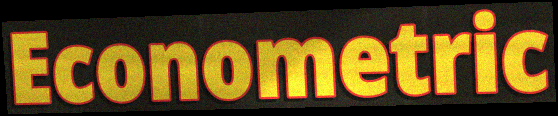
Econometric